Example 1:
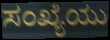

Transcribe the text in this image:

ಸಂಖ್ಯೆಯು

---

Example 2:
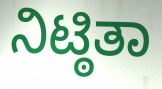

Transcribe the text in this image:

ನಿಟ್ಠಿತಾ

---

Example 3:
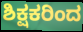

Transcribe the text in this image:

ಶಿಕ್ಷಕರಿಂದ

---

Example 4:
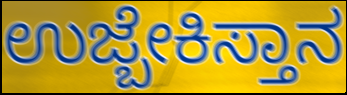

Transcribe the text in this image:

ಉಜ್ಬೇಕಿಸ್ತಾನ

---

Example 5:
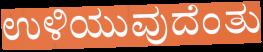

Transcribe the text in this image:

ಉಳಿಯುವುದೆಂತು